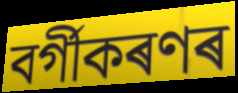
বৰ্গীকৰণৰ